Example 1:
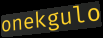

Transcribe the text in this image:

onekgulo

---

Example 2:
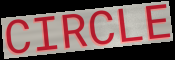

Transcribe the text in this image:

CIRCLE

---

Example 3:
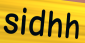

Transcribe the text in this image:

sidhh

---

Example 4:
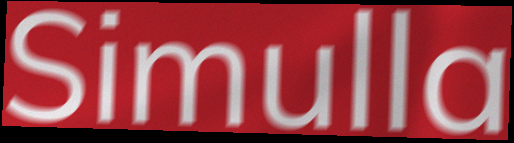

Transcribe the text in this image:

Simulla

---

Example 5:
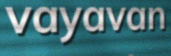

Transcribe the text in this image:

vayavan